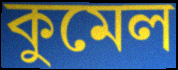
কুমেল